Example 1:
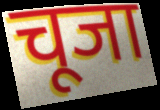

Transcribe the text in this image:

चूजा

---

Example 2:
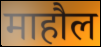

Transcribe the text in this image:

माहौल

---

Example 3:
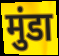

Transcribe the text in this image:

मुंडा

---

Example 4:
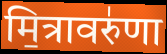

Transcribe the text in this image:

मि॒त्रावरु॑णा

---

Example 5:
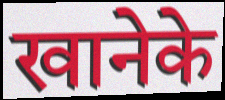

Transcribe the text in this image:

खानेके